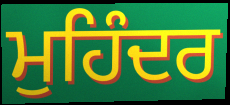
ਮੁਹਿੰਦਰ